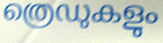
ത്രെഡുകളും